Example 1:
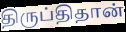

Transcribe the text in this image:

திருப்திதான்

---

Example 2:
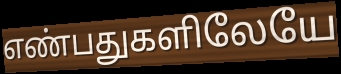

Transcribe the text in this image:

எண்பதுகளிலேயே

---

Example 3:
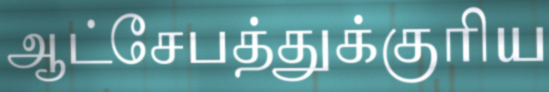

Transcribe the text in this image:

ஆட்சேபத்துக்குரிய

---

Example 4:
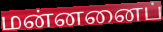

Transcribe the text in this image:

மன்னனைப்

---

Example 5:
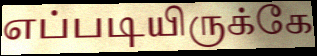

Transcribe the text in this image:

எப்படியிருக்கே